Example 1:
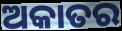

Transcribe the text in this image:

ଅକାତର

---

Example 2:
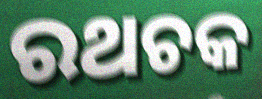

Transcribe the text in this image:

ରଥଚକ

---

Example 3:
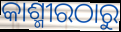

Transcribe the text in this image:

କାଶ୍ମୀରଠାରୁ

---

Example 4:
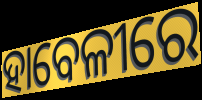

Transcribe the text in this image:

ହାବେଳୀରେ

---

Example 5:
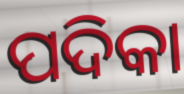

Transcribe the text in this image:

ପଦିକା